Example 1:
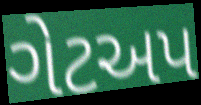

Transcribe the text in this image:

ગેટઅપ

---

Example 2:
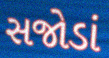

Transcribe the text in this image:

સજોડાં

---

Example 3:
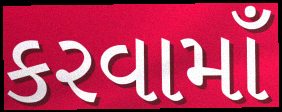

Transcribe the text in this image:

કરવામાઁ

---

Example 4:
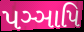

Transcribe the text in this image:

પઞ્ઞાપિ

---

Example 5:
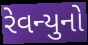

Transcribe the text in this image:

રેવન્યુનો